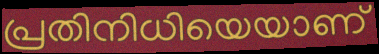
പ്രതിനിധിയെയാണ്